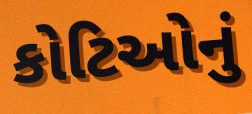
કોટિઓનું